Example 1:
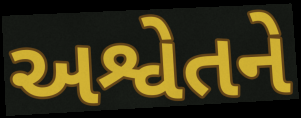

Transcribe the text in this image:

અશ્વેતને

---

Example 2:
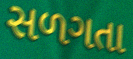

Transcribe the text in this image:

સળગતા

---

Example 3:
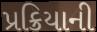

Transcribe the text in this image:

પ્રક્રિયાની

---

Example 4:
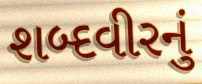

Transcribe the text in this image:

શબ્દવીરનું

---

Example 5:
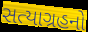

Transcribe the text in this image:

સત્યાગ્રહનો